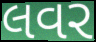
લવર